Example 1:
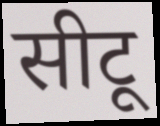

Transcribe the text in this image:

सीटू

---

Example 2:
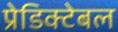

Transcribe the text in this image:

प्रेडिक्टेबल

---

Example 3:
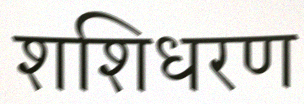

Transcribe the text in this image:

शशिधरण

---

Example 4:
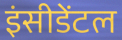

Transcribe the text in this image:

इंसीडेंटल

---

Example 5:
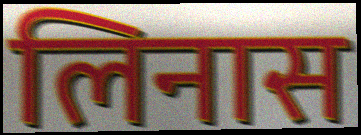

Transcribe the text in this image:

लिनास